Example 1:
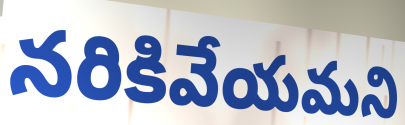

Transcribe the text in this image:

నరికివేయమని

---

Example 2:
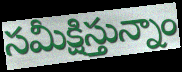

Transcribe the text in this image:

సమీక్షిస్తున్నాం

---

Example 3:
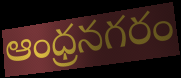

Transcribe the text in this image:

ఆంధ్రనగరం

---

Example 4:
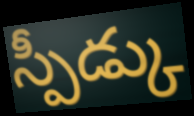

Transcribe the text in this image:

స్పీడ్కు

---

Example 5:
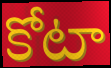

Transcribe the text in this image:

కోటా